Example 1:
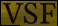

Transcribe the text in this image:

VSF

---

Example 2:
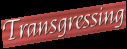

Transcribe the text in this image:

Transgressing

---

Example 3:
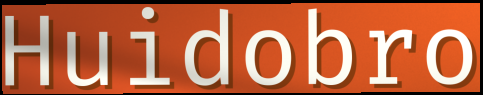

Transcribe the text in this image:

Huidobro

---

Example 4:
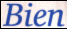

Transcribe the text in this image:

Bien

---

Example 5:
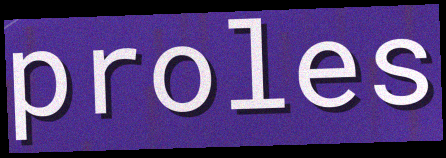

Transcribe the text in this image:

proles